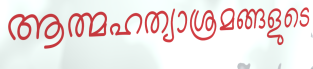
ആത്മഹത്യാശ്രമങ്ങളുടെ